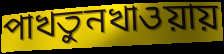
পাখতুনখাওয়ায়